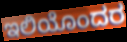
ಇಲಿಯೊಂದರ